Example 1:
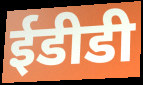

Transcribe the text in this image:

ईडीडी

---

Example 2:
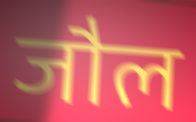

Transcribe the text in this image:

जौल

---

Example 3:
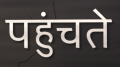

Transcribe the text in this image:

पहुंचते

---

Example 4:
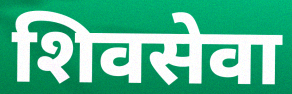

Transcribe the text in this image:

शिवसेवा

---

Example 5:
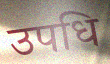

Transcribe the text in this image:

उपधि